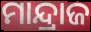
ମାନ୍ଦ୍ରାଜ